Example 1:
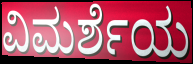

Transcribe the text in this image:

ವಿಮರ್ಶೆಯ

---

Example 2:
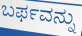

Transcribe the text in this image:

ಬರ್ಫವನ್ನು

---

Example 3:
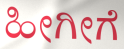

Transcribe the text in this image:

ಹೀಗೀಗೆ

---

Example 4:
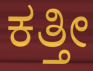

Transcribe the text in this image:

ಕತ್ತೀ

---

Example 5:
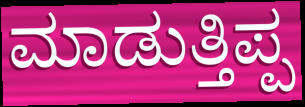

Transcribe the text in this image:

ಮಾಡುತ್ತಿಪ್ಪ